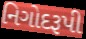
નિગોદરૂપી